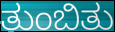
ತುಂಬಿತು